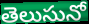
తెలుసునో